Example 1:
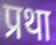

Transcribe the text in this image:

प्रथा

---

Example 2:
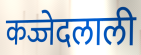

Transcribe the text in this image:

कज्जेदलाली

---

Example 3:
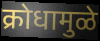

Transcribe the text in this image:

क्रोधामुळे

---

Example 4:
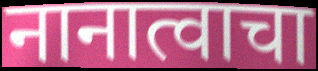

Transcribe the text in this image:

नानात्वाचा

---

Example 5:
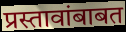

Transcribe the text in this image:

प्रस्तावांबाबत